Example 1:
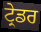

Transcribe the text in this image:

ਟ੍ਰੇਡਰ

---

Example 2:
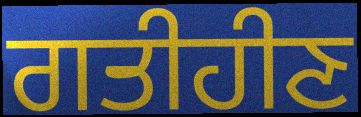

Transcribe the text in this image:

ਗਤੀਹੀਣ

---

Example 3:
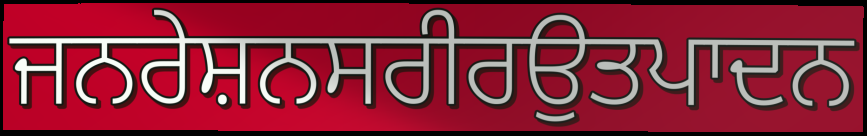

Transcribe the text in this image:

ਜਨਰੇਸ਼ਨਸਰੀਰਉਤਪਾਦਨ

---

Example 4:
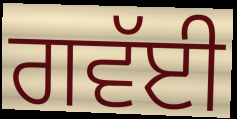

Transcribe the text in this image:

ਗਵੱਈ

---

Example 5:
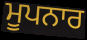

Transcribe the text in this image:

ਮੂਪਨਾਰ